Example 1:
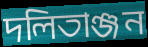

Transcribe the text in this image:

দলিতাঞ্জন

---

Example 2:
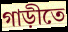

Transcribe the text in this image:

গাড়ীতে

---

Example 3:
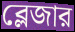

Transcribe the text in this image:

ব্লেজার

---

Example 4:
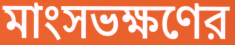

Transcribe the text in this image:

মাংসভক্ষণের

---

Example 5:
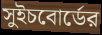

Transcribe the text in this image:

সুইচবোর্ডের